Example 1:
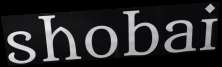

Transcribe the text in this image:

shobai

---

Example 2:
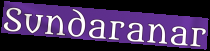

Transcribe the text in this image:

Sundaranar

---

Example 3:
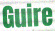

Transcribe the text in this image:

Guire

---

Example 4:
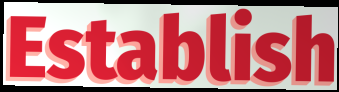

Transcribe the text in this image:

Establish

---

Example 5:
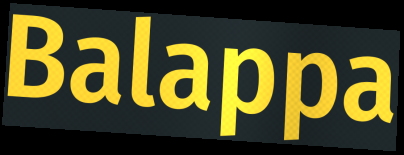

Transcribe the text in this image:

Balappa